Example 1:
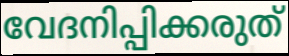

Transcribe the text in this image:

വേദനിപ്പിക്കരുത്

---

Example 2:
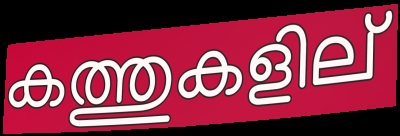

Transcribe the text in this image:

കത്തുകളില്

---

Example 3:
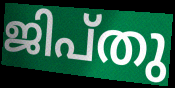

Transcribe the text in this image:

ജിപ്തു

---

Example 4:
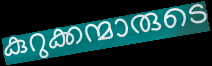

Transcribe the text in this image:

കുറുക്കന്മാരുടെ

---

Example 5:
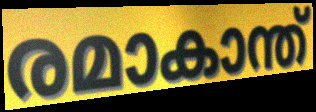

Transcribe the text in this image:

രമാകാന്ത്